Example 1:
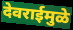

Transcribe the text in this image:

देवराईमुळे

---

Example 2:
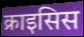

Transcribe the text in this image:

क्राइसिस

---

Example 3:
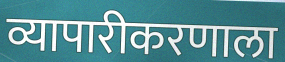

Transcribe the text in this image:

व्यापारीकरणाला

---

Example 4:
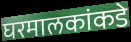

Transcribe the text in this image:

घरमालकांकडे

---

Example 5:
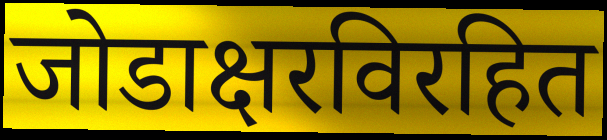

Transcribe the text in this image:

जोडाक्षरविरहित